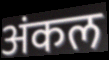
अंकल